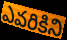
ఎవరికిని